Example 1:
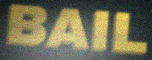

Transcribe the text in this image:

BAIL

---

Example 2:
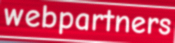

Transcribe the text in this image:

webpartners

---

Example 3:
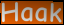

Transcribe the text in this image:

Haak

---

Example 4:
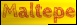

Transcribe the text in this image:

Maltepe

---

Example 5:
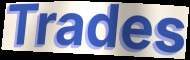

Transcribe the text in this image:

Trades